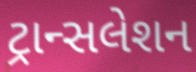
ટ્રાન્સલેશન